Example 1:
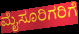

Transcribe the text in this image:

ಮೈಸೂರಿಗರಿಗೆ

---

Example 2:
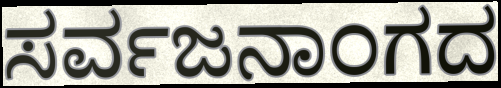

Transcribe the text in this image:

ಸರ್ವಜನಾಂಗದ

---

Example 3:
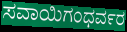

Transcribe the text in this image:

ಸವಾಯಿಗಂಧರ್ವರ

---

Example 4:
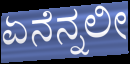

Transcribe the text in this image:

ಏನೆನ್ನಲೀ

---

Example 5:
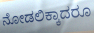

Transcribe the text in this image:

ನೋಡಲಿಕ್ಕಾದರೂ